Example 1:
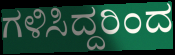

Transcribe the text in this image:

ಗಳಿಸಿದ್ದರಿಂದ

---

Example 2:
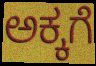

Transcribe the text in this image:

ಅಕ್ಕಗೆ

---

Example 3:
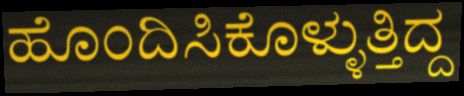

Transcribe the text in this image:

ಹೊಂದಿಸಿಕೊಳ್ಳುತ್ತಿದ್ದ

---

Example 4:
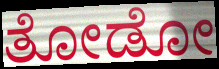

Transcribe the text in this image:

ತೋಡೋ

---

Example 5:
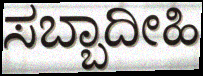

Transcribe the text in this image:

ಸಬ್ಬಾದೀಹಿ